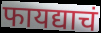
फायद्याचं